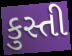
કુસ્તી